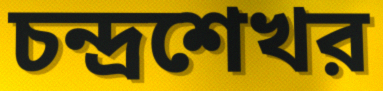
চন্দ্রশেখর